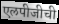
एलपीजीची